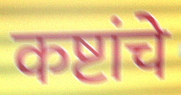
कष्टांचे